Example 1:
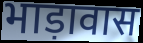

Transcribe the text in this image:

भाड़ावास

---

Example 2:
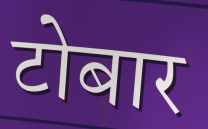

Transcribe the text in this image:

टोबार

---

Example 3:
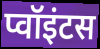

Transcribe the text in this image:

प्वॉइंटस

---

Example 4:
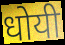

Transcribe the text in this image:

धोयी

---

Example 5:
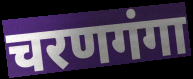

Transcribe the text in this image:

चरणगंगा